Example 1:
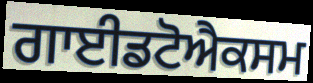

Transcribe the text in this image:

ਗਾਈਡਟੋਐਕਸਮ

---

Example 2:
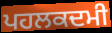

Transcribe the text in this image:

ਪਹਲਕਦਮੀ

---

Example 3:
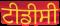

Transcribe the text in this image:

ਟੀਡੀਸੀ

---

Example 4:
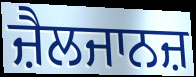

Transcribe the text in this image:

ਜ਼ੈਲਜਾਨਜ਼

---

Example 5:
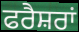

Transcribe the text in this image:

ਫਰੈਸ਼ਰਾਂ